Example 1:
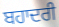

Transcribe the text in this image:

ਬਹਾਦਰੀ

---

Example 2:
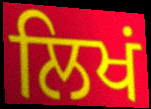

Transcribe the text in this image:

ਲਿਖਂ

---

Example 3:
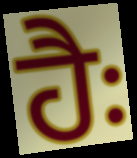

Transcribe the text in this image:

ਹੈਃ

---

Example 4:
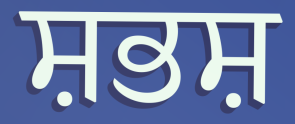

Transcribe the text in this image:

ਸ਼ਭਸ਼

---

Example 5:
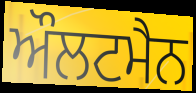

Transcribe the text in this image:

ਔਲਟਮੈਨ